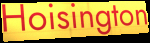
Hoisington